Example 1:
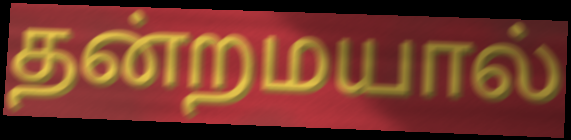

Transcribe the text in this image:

தன்றமயால்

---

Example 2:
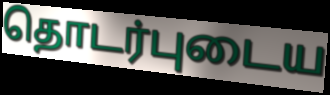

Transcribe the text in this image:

தொடர்புடைய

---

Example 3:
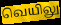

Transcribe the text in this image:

வெயிலு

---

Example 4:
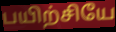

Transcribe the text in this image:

பயிற்சியே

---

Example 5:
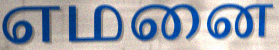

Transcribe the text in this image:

எமனை